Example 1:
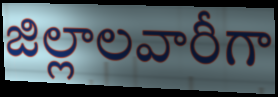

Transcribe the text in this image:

జిల్లాలవారీగా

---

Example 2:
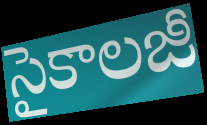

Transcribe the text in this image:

సైకాలజీ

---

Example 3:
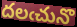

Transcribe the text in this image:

దలఁచునొ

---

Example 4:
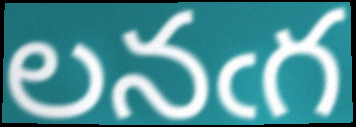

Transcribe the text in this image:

లనఁగ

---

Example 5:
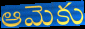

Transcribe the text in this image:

ఆమెకు